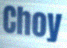
Choy